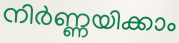
നിർണ്ണയിക്കാം